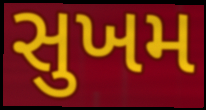
સુખમ